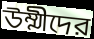
উম্মীদের